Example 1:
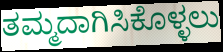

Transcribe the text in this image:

ತಮ್ಮದಾಗಿಸಿಕೊಳ್ಳಲು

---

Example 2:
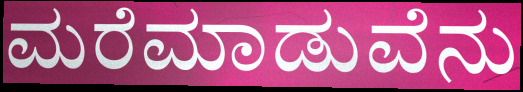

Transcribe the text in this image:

ಮರೆಮಾಡುವೆನು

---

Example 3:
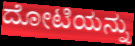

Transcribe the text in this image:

ದೋಟಿಯನ್ನು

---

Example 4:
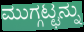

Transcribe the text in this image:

ಮುಗ್ಗಟ್ಟನ್ನು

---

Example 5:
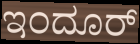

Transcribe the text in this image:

ಇಂದೂರ್